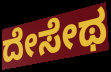
ದೇಸೇಥ